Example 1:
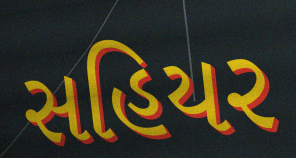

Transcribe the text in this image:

સહિયર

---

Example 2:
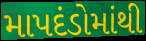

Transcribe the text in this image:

માપદંડોમાંથી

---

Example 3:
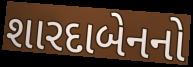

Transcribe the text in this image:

શારદાબેનનો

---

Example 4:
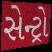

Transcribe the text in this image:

સેન્ટ્રો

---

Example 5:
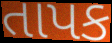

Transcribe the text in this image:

તાપક